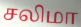
சலிமா